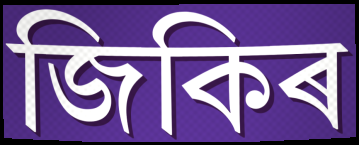
জিকিৰ